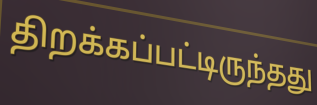
திறக்கப்பட்டிருந்தது